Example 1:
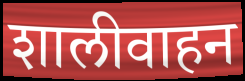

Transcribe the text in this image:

शालीवाहन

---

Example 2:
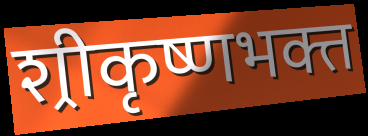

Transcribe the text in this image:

श्रीकृष्णभक्त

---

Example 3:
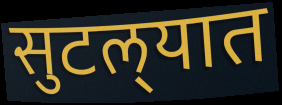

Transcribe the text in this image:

सुटल्यात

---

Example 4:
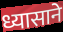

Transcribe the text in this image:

ध्यासाने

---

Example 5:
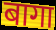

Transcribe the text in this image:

बागा